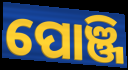
ପୋଞ୍ଜି